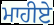
ਮਾਹੀਏ